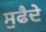
ਸੁਫੈਦੇ